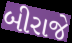
બીરાજે